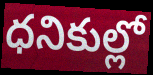
ధనికుల్లో